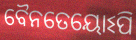
ବୈନତେୟୋଽପି